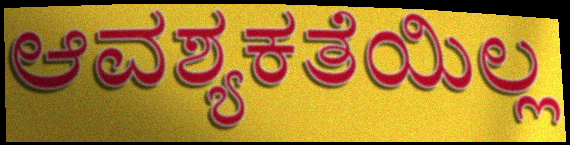
ಆವಶ್ಯಕತೆಯಿಲ್ಲ